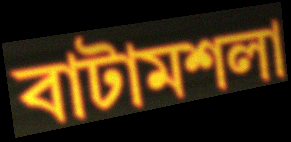
বাটামশলা